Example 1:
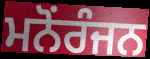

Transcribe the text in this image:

ਮਨੋਂਰੰਜਨ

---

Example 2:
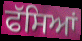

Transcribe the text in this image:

ਫੱਸਿਆਂ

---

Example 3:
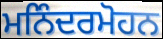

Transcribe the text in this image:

ਮਨਿੰਦਰਮੋਹਨ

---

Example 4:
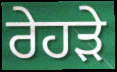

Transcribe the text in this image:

ਰੇਹੜੇ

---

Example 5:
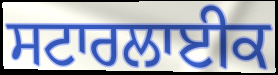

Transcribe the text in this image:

ਸਟਾਰਲਾਈਕ